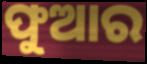
ଫୁଆର